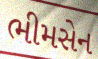
ભીમસેન